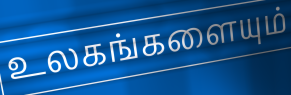
உலகங்களையும்